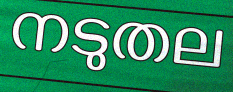
നടുതല